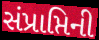
સંપ્રાપ્તિની